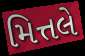
મિત્તલે